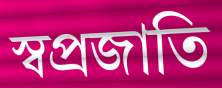
স্বপ্রজাতি